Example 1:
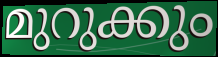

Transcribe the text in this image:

മുറുക്കും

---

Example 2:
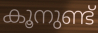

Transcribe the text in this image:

കൂനുണ്ട്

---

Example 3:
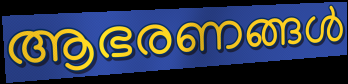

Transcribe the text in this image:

ആഭരണങ്ങൾ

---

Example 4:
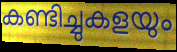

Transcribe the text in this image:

കണ്ടിച്ചുകളയും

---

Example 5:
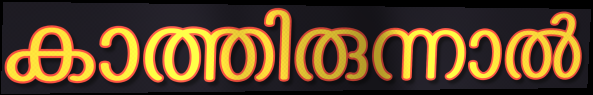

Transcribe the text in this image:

കാത്തിരുന്നാൽ